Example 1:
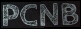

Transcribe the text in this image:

PCNB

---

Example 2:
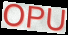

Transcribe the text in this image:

OPU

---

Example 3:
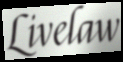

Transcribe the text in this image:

Livelaw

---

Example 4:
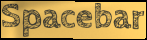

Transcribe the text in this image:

Spacebar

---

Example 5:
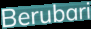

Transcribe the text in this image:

Berubari